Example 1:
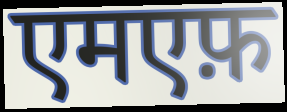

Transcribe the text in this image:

एमएफ़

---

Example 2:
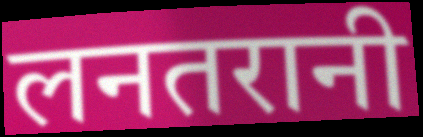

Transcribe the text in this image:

लनतरानी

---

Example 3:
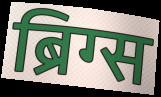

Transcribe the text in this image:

ब्रिग्स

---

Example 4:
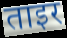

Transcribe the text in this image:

ताइर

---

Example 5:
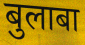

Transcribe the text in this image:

बुलाबा